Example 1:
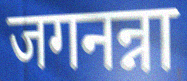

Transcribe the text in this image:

जगनन्ना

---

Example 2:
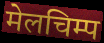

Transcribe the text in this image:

मेलचिम्प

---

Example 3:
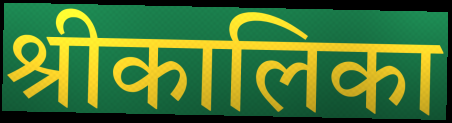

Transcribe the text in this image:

श्रीकालिका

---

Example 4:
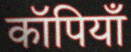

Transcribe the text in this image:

कॉपियाँ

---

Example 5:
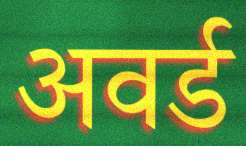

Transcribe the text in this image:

अवर्ड